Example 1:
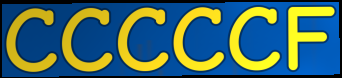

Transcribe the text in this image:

CCCCCF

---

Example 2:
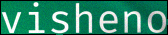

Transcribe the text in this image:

visheno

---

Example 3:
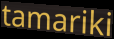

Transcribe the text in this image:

tamariki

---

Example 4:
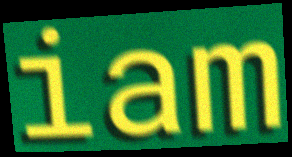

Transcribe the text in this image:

iam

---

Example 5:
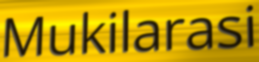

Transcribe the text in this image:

Mukilarasi